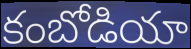
కంబోడియా